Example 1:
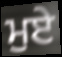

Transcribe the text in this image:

ਮੁਏ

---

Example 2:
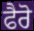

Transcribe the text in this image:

ਫੈਰੋ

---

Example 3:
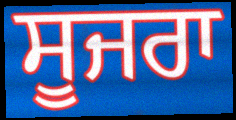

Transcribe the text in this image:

ਸੂਜਰਾ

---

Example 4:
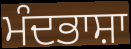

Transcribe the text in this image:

ਮੰਦਭਾਸ਼ਾ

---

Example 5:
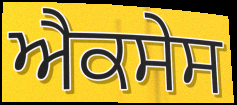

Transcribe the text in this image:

ਐਕਸੇਸ